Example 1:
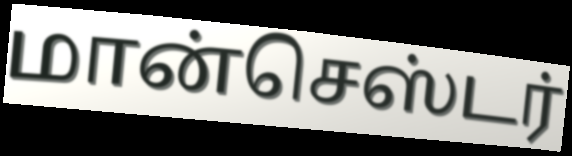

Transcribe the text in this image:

மான்செஸ்டர்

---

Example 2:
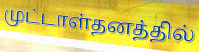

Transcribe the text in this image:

முட்டாள்தனத்தில்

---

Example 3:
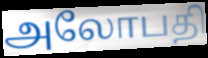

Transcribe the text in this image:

அலோபதி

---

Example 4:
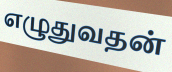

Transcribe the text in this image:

எழுதுவதன்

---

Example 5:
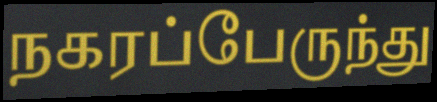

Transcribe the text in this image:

நகரப்பேருந்து